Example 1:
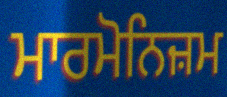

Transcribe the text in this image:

ਮਾਰਮੋਨਿਜ਼ਮ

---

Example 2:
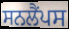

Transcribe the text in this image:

ਸਨਲੈਂਪਸ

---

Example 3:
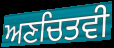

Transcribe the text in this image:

ਅਣਚਿਤਵੀ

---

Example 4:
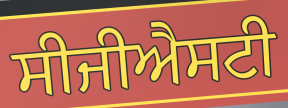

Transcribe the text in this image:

ਸੀਜੀਐਸਟੀ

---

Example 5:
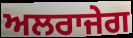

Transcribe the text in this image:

ਅਲਰਾਜੇਗ